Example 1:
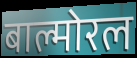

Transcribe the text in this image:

बाल्‍मोरल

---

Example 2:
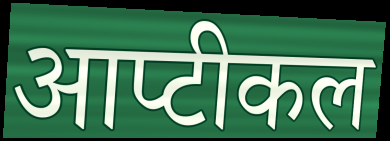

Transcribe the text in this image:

आप्टीकल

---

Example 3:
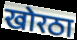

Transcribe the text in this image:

खोरठा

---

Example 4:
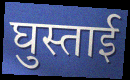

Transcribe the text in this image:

घुस्ताई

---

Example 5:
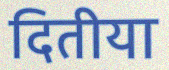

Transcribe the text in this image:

दितीया